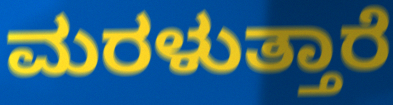
ಮರಳುತ್ತಾರೆ